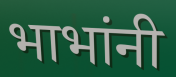
भाभांनी